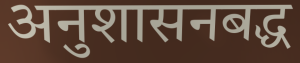
अनुशासनबद्ध